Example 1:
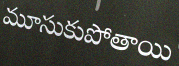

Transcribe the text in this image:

మూసుకుపోతాయి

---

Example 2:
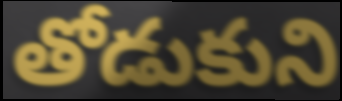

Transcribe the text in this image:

తోడుకుని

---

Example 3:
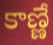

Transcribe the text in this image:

కాణ్ణే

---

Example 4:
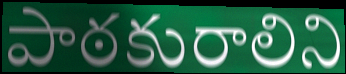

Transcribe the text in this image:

పాఠకురాలిని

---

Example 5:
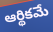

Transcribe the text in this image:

ఆర్థికమే